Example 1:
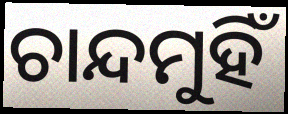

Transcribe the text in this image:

ଚାନ୍ଦମୁହିଁ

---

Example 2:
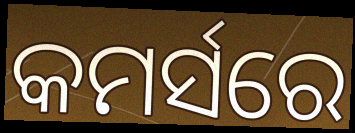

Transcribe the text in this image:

କମର୍ସରେ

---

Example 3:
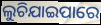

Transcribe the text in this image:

ଲୁଚିଯାଇପାରେ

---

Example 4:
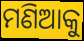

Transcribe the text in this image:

ମଣିଆକୁ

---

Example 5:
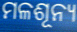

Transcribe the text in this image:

ମଳଶୂନ୍ୟ